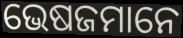
ଭେଷଜମାନେ